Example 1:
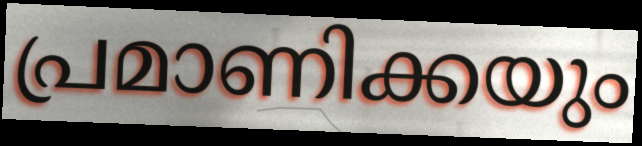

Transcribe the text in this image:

പ്രമാണിക്കയും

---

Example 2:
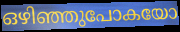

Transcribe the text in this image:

ഒഴിഞ്ഞുപോകയോ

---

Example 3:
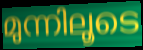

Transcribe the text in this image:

മുന്നിലൂടെ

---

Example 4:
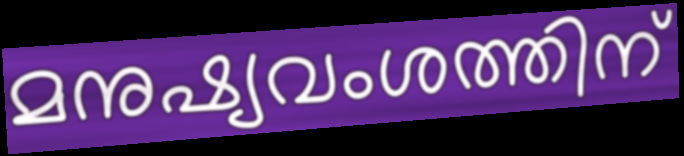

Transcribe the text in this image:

മനുഷ്യവംശത്തിന്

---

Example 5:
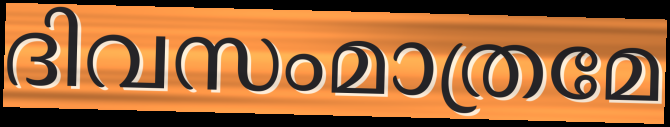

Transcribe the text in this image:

ദിവസംമാത്രമേ